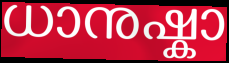
ധാനുഷ്കാ